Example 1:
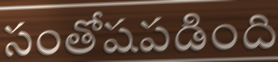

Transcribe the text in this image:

సంతోషపడింది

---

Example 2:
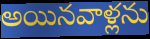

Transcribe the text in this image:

అయినవాళ్లను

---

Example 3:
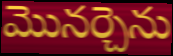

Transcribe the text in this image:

మొనర్చెను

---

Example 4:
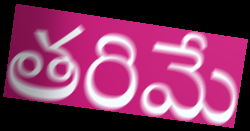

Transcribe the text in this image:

తరిమే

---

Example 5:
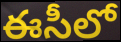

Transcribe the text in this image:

ఈసీలో